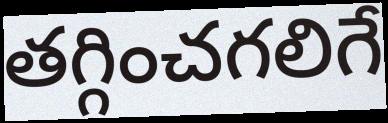
తగ్గించగలిగే